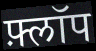
फ़्लॉप